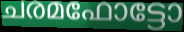
ചരമഫോട്ടോ